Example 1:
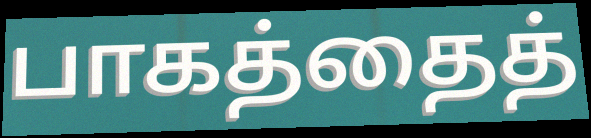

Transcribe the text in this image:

பாகத்தைத்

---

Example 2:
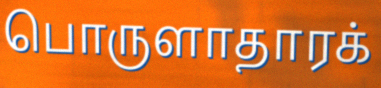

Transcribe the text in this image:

பொருளாதாரக்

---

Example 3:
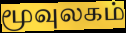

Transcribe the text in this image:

மூவுலகம்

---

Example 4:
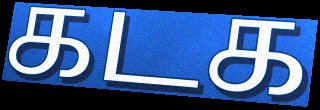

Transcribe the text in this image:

கடக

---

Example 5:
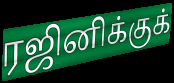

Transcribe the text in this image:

ரஜினிக்குக்